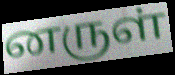
னருள்